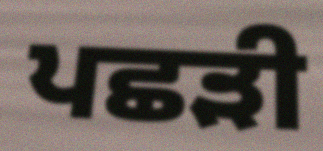
ਪਛੜੀ